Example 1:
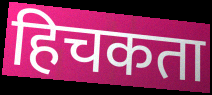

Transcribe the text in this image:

हिचकता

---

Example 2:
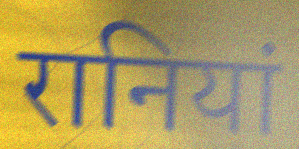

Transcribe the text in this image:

रानियां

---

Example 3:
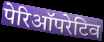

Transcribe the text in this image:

पेरिऑपरेटिव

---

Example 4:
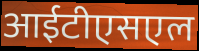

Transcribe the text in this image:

आईटीएसएल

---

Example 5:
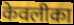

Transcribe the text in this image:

केवलीका